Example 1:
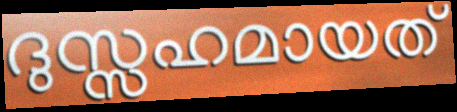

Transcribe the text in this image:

ദുസ്സഹമായത്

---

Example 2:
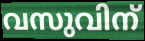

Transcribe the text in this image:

വസുവിന്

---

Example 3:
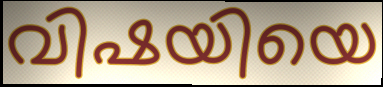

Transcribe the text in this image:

വിഷയിയെ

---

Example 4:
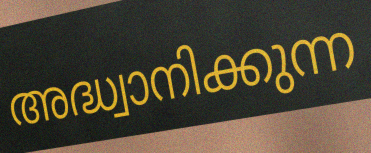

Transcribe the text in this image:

അദ്ധ്വാനിക്കുന്ന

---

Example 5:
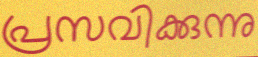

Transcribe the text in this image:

പ്രസവിക്കുന്നു